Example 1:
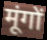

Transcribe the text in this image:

मूंगों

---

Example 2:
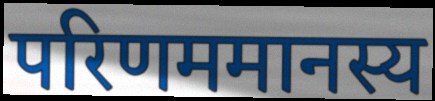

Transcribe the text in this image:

परिणममानस्य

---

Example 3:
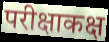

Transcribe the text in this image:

परीक्षाकक्ष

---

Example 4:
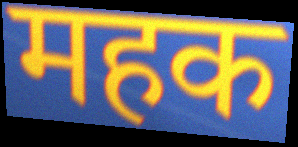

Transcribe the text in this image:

महक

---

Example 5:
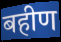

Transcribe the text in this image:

बहीण